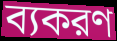
ব্যকরণ